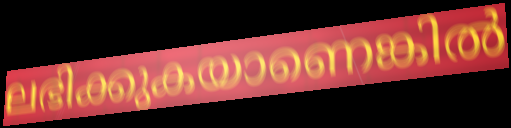
ലഭിക്കുകയാണെങ്കിൽ